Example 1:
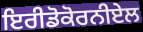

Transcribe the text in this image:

ਇਰੀਡੋਕੋਰਨੀਏਲ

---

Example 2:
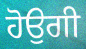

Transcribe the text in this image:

ਹੋਉਗੀ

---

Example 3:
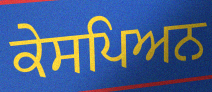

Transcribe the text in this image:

ਕੇਸਪਿਅਨ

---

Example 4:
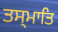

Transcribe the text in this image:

ਤਸ੍ਮਾਤਿ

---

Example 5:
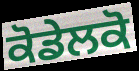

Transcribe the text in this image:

ਕੋਡੇਲਕੋ